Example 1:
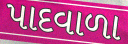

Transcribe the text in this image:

પાદવાળા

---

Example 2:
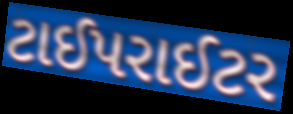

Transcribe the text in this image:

ટાઈપરાઈટર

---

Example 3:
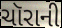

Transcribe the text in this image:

ચૉરાની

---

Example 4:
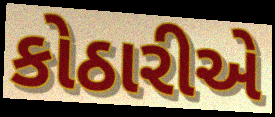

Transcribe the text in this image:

કોઠારીએ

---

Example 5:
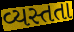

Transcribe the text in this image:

વ્યસ્તતા